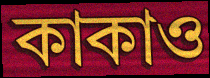
কাকাও